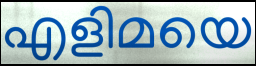
എളിമയെ